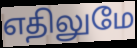
எதிலுமே